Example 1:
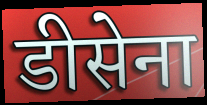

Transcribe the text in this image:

डीसेना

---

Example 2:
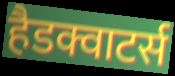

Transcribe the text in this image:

हैडक्वाटर्स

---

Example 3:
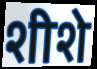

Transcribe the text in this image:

शीशे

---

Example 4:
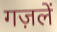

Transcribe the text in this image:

गज़लें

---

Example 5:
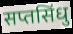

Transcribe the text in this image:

सप्तसिंधु